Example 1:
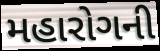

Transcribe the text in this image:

મહારોગની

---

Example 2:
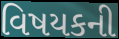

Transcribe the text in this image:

વિષયકની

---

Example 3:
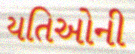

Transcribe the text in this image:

યતિઓની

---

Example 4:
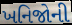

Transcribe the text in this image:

ખનિજોની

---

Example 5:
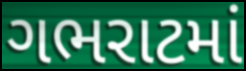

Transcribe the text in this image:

ગભરાટમાં